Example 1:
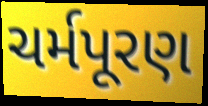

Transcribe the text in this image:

ચર્મપૂરણ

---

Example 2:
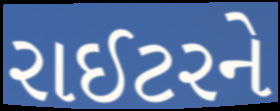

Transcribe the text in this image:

રાઈટરને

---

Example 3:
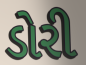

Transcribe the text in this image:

ડોરી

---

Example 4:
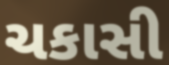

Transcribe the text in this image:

ચકાસી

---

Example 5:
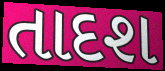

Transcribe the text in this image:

તાદશ